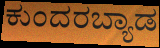
ಕುಂದರಬ್ಯಾಡ